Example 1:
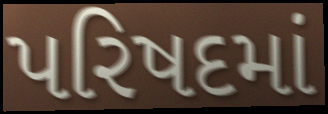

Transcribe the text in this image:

પરિષદમાં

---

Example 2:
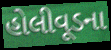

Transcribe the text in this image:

હોલીવૂડના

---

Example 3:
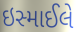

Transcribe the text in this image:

ઇસ્માઈલે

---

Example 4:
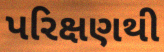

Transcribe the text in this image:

પરિક્ષણથી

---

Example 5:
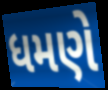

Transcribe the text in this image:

ધમણે